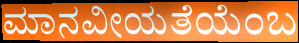
ಮಾನವೀಯತೆಯೆಂಬ